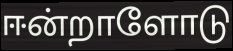
ஈன்றாளோடு